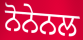
ਨੋਨੇਨਲ